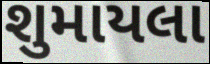
શુમાયલા